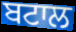
ਬਟਾਲ